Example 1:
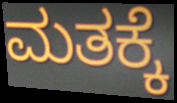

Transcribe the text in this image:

ಮತಕ್ಕೆ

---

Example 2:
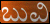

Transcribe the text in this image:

ಬುವಿ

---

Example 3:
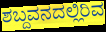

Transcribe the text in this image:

ಶಬ್ದವನದಲ್ಲಿರಿವ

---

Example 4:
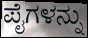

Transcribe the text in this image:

ಪೈಗಳನ್ನು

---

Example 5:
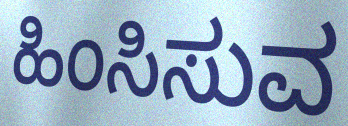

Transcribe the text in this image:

ಹಿಂಸಿಸುವ